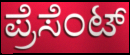
ಪ್ರೆಸೆಂಟ್